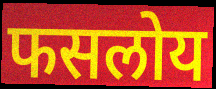
फसलोय